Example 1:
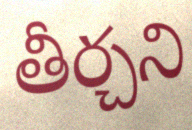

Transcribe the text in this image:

తీర్చని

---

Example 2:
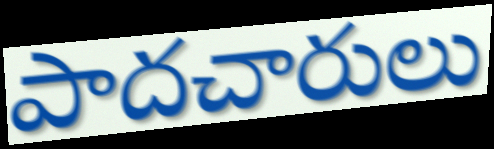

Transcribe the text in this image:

పాదచారులు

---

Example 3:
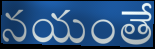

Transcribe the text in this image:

నయంతే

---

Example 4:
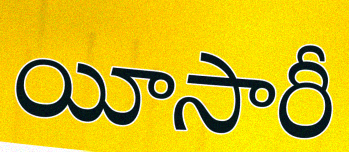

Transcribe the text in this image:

యీసారీ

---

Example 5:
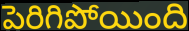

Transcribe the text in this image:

పెరిగిపోయింది